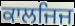
ਕਾਲਜਿਜ